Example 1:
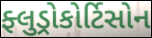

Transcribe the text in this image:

ફ્લુડ્રોકોર્ટિસોન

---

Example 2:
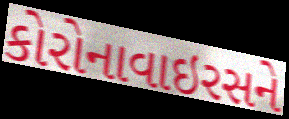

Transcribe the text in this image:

કોરોનાવાઇરસને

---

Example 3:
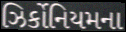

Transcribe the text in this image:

ઝિર્કોનિયમના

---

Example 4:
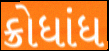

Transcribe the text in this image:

ક્રોધાંધ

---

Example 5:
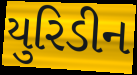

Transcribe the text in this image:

યુરિડીન